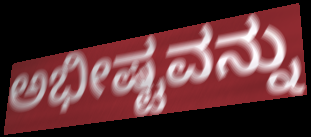
ಅಭೀಷ್ಟವನ್ನು